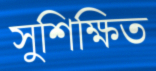
সুশিক্ষিত